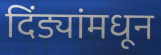
दिंड्यांमधून